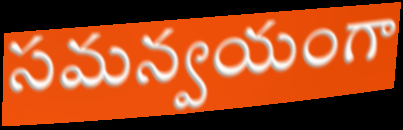
సమన్వయంగా